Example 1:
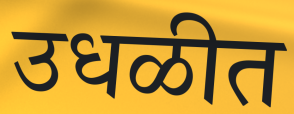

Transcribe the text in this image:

उधळीत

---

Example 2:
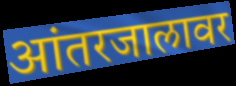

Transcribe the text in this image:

आंतरजालावर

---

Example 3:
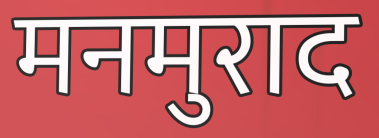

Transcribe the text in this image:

मनमुराद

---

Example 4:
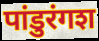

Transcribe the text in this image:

पांडुरंगश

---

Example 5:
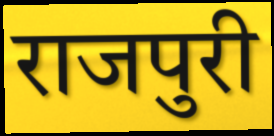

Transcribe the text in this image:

राजपुरी